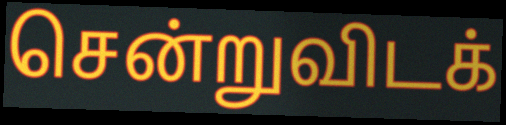
சென்றுவிடக்